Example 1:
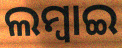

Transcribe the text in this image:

ଲମ୍ବାଇ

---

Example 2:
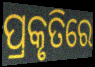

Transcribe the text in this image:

ପ୍ରକୃତିରେ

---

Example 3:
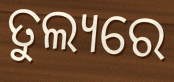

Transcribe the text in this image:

ତୁଲ୍ୟରେ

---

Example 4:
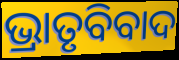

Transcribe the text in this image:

ଭ୍ରାତୃବିବାଦ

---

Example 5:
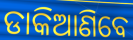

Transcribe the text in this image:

ଡାକିଆଣିବେ